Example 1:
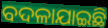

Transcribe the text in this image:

ବଦଳାଯାଇଛି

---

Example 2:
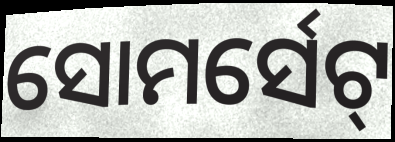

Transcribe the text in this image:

ସୋମର୍ସେଟ୍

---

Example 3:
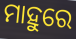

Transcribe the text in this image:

ମାହୁରେ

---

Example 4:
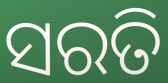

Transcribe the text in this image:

ସରତି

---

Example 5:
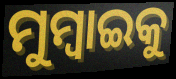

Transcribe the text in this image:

ମୁମ୍ବାଇକୁ